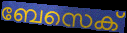
ബേസെക്